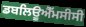
ਡਬਲਿਊਐੱਮਸੀਸੀ